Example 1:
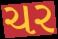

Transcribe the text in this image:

ચર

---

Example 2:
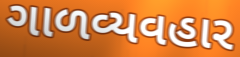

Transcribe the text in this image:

ગાળવ્યવહાર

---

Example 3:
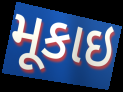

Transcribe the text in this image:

મૂકાઇ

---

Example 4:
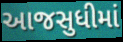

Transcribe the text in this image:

આજસુધીમાં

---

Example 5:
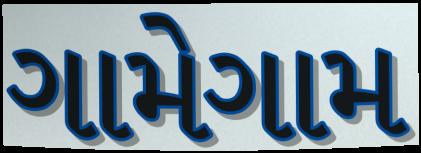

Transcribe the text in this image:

ગામેગામ